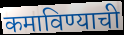
कमाविण्याची